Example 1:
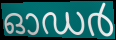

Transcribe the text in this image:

ഓഡർ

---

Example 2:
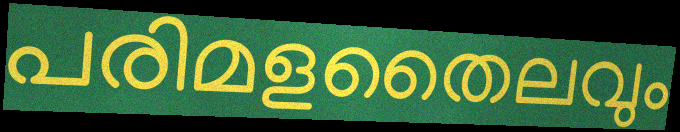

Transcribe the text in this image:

പരിമളതൈലവും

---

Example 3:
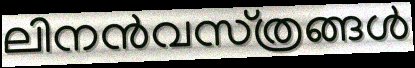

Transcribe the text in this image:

ലിനൻവസ്‌ത്രങ്ങൾ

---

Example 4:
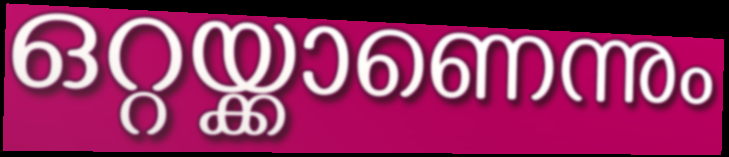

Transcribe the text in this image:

ഒറ്റയ്ക്കാണെന്നും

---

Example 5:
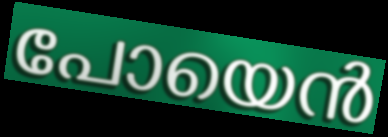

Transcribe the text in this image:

പോയെൻ